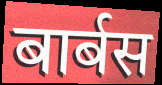
बार्बस